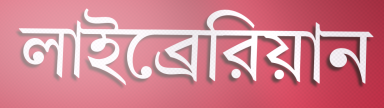
লাইব্রেরিয়ান